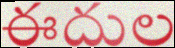
ఈదుల